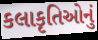
કલાકૃતિઓનું